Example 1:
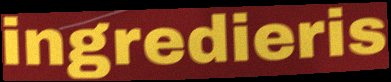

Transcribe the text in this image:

ingredieris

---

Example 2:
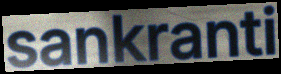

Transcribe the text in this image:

sankranti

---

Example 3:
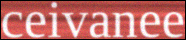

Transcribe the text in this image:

ceivanee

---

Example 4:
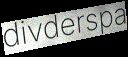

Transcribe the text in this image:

divderspa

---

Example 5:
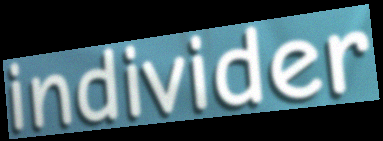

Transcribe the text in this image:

individer